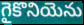
గైకొనియెను